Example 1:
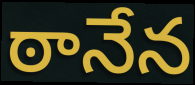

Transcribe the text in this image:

ఠానేన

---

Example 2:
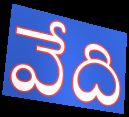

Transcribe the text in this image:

వేది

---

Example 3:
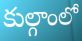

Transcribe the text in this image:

కుల్గాంలో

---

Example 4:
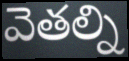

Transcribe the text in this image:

వెతల్ని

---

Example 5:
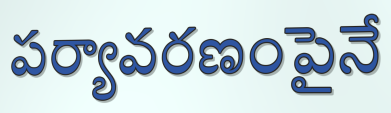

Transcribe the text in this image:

పర్యావరణంపైనే